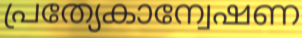
പ്രത്യേകാന്വേഷണ